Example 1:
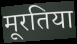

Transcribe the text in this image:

मूरतिया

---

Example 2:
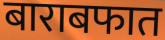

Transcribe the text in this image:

बाराबफात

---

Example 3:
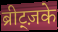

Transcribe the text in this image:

ब्रीट्ज़के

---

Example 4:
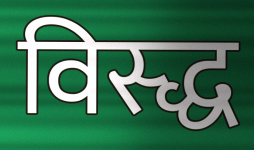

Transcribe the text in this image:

विस्द्ध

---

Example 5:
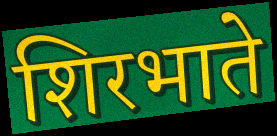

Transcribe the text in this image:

शिरभाते